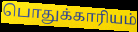
பொதுக்காரியம்